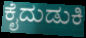
ಕೈದುಡುಕಿ